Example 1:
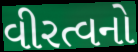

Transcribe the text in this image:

વીરત્વનો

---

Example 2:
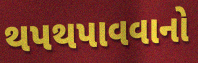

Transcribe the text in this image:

થપથપાવવાનો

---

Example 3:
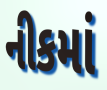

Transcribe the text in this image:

નીકમાં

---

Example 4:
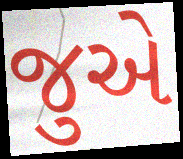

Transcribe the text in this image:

જુએ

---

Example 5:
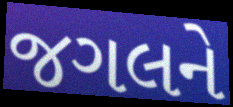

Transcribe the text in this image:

જગલને